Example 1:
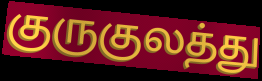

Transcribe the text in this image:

குருகுலத்து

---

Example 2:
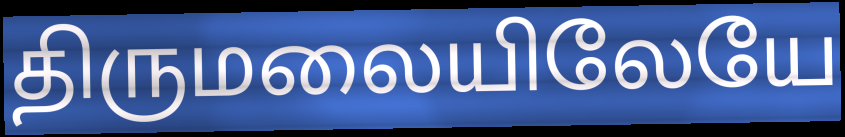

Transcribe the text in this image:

திருமலையிலேயே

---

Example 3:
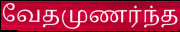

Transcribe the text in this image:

வேதமுணர்ந்த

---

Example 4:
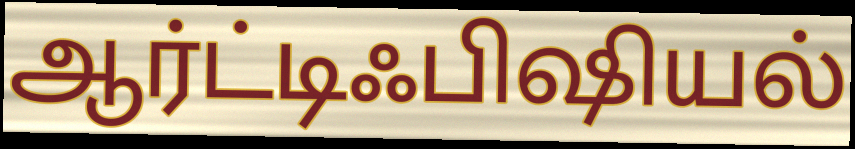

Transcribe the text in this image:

ஆர்ட்டிஃபிஷியல்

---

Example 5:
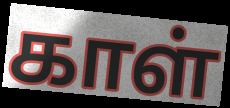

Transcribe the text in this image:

காள்